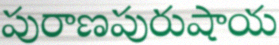
పురాణపురుషాయ